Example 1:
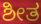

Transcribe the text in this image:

ಶೀತ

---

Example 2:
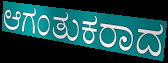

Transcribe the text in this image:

ಆಗಂತುಕರಾದ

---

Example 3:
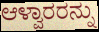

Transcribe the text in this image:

ಆಳ್ವಾರರನ್ನು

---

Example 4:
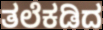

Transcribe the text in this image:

ತಲೆಕಡಿದ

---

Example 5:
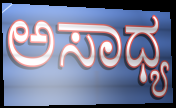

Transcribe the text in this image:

ಅಸಾಧ್ಯ